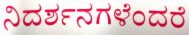
ನಿದರ್ಶನಗಳೆಂದರೆ